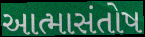
આત્માસંતોષ